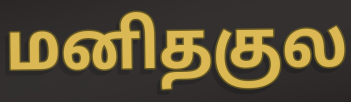
மனிதகுல